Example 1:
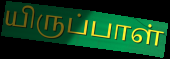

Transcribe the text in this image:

யிருப்பாள்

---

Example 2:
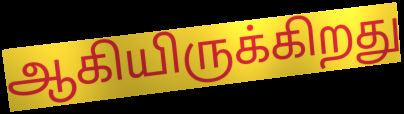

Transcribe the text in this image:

ஆகியிருக்கிறது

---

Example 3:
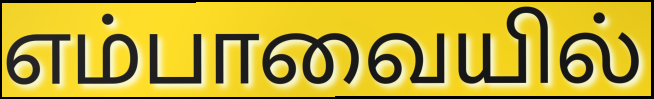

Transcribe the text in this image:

எம்பாவையில்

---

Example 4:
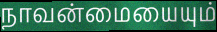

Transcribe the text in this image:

நாவன்மையையும்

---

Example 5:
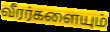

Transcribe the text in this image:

வீரர்களையும்